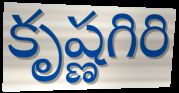
కృష్ణగిరి